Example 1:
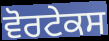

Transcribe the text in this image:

ਵੋਰਟੇਕਸ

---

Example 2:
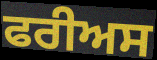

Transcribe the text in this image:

ਫਰੀਅਸ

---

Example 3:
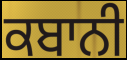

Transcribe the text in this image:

ਕਬਾਨੀ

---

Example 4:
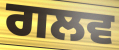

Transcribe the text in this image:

ਗਲਵ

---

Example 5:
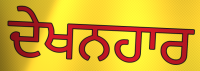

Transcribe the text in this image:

ਦੇਖਨਹਾਰ